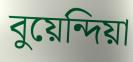
বুয়েন্দিয়া